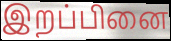
இறப்பினை